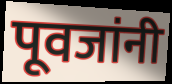
पूवजांनी